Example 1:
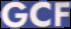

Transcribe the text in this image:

GCF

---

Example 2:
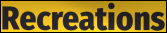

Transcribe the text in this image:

Recreations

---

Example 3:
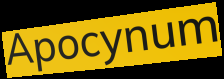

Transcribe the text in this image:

Apocynum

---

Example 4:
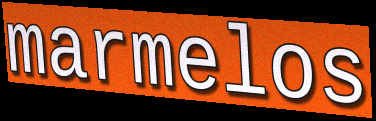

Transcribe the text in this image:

marmelos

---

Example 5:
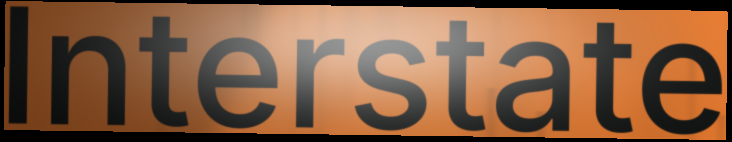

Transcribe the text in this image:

Interstate